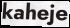
kaheje